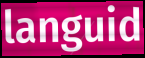
languid